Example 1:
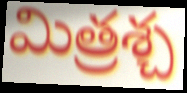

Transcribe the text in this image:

మిత్రశ్చ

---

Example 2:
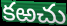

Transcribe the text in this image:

కఱచు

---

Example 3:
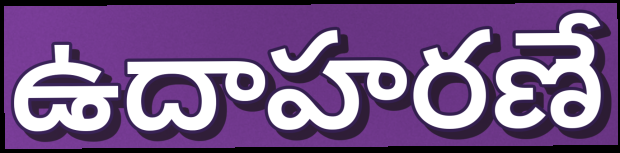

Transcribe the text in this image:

ఉదాహరణే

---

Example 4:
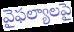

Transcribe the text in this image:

వైఫల్యాలపై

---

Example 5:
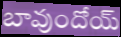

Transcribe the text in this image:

బావుందోయ్